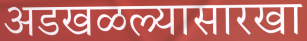
अडखळल्यासारखा